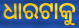
ଧାରଟାକୁ